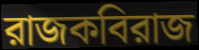
রাজকবিরাজ